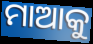
ମାଆକୁ